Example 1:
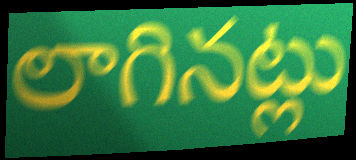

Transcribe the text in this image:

లాగినట్లు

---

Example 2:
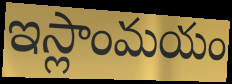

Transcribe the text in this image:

ఇస్లాంమయం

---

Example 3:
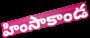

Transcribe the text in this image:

హింసాకాండ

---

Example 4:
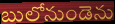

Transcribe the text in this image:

బులోనుండెను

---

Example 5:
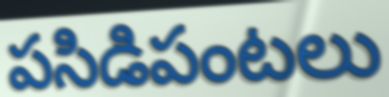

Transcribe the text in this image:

పసిడిపంటలు